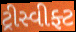
ટ્રીસ્વીફ્ટ